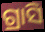
ଗ୍ରାସି